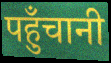
पहुँचानी